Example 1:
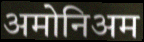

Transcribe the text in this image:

अमोनिअम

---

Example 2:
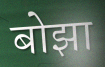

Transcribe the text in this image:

बोझा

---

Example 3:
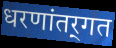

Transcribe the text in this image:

धरणांतर्गत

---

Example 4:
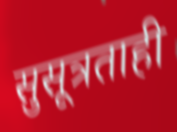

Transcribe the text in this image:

सुसूत्रताही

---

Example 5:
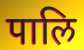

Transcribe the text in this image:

पालि